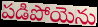
పడిపోయెను